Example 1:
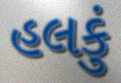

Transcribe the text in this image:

હલકું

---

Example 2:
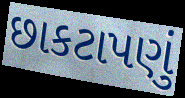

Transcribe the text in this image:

છાકટાપણું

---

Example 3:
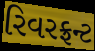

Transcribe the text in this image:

રિવરફ્રન્ટ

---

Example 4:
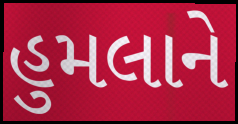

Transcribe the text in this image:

હુમલાને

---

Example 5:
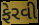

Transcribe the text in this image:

ફેરવી